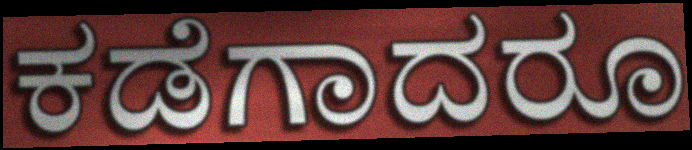
ಕಡೆಗಾದರೂ